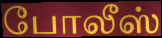
போலீஸ்